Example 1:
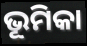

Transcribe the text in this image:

ଭୂମିକା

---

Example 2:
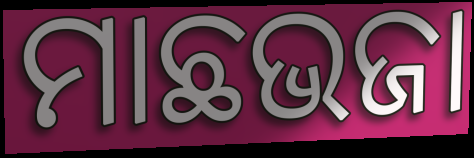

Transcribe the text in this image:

ମାଛଭଜା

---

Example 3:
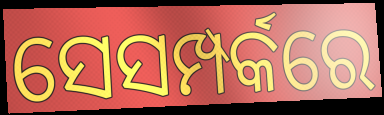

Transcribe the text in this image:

ସେସମ୍ପର୍କରେ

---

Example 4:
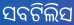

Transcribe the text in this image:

ସବଟିଲିସ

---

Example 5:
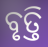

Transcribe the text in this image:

ବୃତ୍ତି